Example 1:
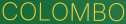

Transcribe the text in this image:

COLOMBO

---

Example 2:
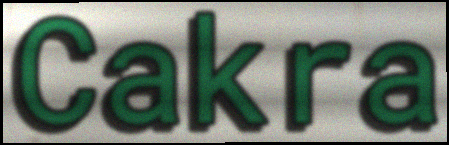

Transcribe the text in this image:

Cakra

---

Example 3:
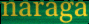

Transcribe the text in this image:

naraga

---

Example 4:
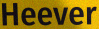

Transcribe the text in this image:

Heever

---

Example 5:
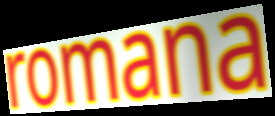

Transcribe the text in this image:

romana